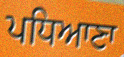
ਪਧਿਆਣਾ